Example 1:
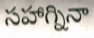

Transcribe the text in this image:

సహాగ్నినా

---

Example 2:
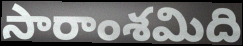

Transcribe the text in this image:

సారాంశమిది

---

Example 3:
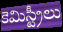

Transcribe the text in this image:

కెమిస్ట్రీలు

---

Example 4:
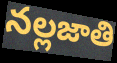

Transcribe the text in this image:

నల్లజాతి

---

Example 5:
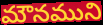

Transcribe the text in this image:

మౌనముని